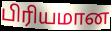
பிரியமான